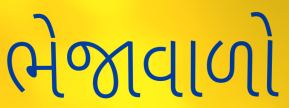
ભેજાવાળો